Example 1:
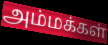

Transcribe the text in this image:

அம்மக்கள்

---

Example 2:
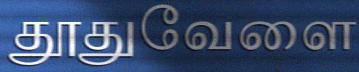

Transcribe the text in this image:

தூதுவேளை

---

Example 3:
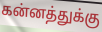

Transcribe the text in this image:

கன்னத்துக்கு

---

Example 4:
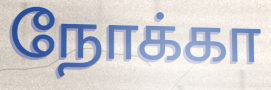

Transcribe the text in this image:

நோக்கா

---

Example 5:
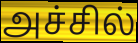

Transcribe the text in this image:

அச்சில்